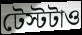
টেস্টটাও